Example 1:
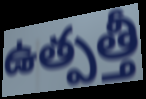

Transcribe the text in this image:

ఉత్పత్తీ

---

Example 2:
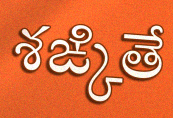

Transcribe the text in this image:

శఙ్కితే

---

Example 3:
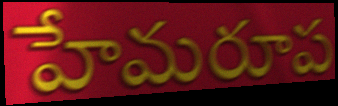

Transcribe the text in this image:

హేమరూప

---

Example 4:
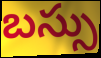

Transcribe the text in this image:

బస్సు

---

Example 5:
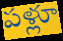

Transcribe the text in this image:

పళ్లూ